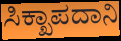
ಸಿಕ್ಖಾಪದಾನಿ